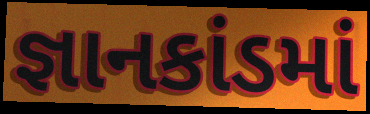
જ્ઞાનકાંડમાં